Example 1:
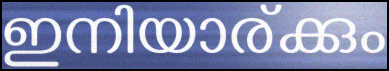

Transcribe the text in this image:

ഇനിയാര്ക്കും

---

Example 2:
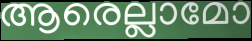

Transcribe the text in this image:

ആരെല്ലാമോ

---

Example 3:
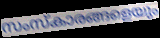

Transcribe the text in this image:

സംസ്കാരങ്ങളെയും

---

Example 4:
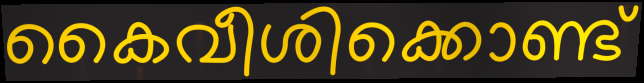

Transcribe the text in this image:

കൈവീശിക്കൊണ്ട്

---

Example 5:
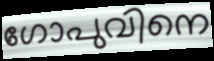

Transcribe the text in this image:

ഗോപുവിനെ